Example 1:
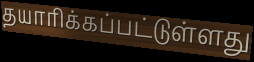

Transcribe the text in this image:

தயாரிக்கப்பட்டுள்ளது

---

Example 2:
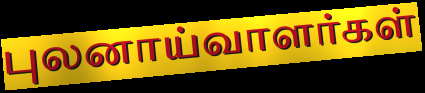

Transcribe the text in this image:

புலனாய்வாளர்கள்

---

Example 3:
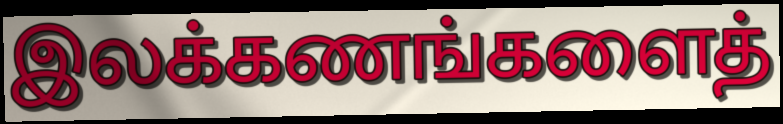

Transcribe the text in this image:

இலக்கணங்களைத்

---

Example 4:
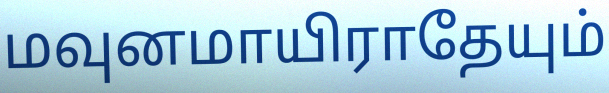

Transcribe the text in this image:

மவுனமாயிராதேயும்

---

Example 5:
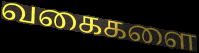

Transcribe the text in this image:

வகைகளை